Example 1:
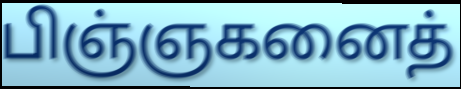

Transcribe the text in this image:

பிஞ்ஞகனைத்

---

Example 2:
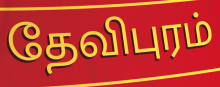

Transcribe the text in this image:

தேவிபுரம்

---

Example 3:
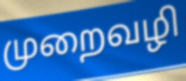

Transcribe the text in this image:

முறைவழி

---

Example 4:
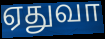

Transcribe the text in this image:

ஏதுவா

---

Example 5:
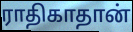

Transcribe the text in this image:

ராதிகாதான்